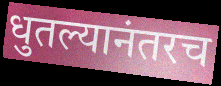
धुतल्यानंतरच